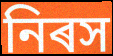
নিৰস